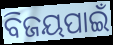
ବିଜୟପାଇଁ